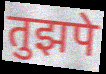
तुझपे